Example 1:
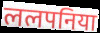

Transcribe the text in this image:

ललपनिया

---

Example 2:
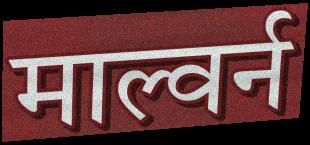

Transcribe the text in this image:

माल्वर्न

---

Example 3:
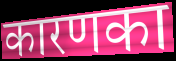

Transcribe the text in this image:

कारणका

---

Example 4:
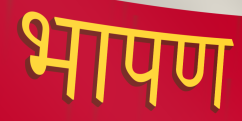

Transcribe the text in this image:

भापण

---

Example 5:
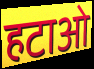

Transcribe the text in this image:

हटाओ